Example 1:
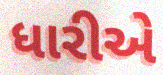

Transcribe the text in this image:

ધારીએ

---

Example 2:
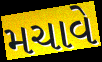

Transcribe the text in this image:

મચાવે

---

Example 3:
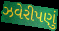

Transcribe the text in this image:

ઝવેરીપણું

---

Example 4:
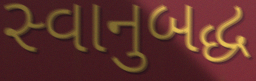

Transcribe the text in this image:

સ્વાનુબદ્ધ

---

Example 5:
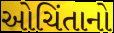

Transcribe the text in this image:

ઓચિંતાનો